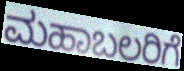
ಮಹಾಬಲರಿಗೆ